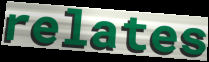
relates